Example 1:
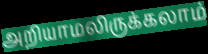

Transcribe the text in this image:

அறியாமலிருக்கலாம்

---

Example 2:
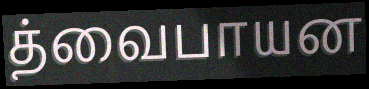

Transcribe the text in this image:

த்வைபாயன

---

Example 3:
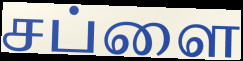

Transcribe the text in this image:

சப்ளை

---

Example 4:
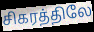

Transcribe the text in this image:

சிகரத்திலே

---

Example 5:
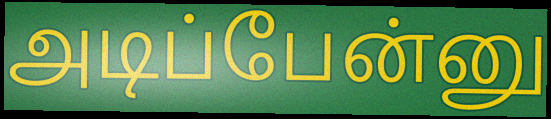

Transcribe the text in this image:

அடிப்பேன்னு